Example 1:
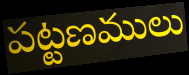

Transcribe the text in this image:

పట్టణములు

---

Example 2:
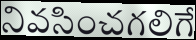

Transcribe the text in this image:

నివసించగలిగే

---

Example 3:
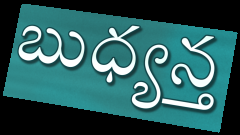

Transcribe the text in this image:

బుధ్యన్త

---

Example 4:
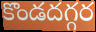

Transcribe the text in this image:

కొండదగ్గర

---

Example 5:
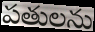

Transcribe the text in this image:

పతులను